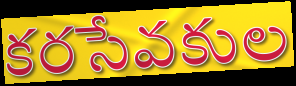
కరసేవకుల